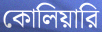
কোলিয়ারি